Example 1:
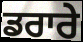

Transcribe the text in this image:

ਡਰਾਰੇ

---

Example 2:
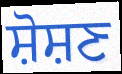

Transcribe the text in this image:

ਸ਼ੋਸ਼ਣ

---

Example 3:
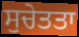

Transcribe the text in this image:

ਸੁਚੇਤਤਾ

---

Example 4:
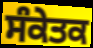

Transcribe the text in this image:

ਸੰਕੇਤਕ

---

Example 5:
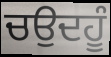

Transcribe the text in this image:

ਚਉਦਹੂੰ